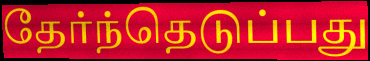
தேர்ந்தெடுப்பது